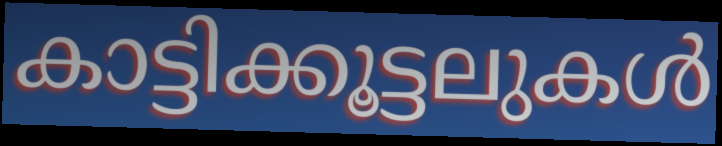
കാട്ടിക്കൂട്ടലുകൾ